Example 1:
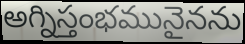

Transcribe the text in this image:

అగ్నిస్తంభమునైనను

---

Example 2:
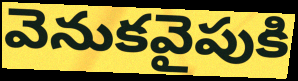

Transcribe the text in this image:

వెనుకవైపుకి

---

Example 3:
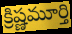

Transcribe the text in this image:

క్రిష్ణమూర్తి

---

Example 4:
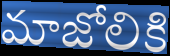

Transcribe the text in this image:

మాజోలికి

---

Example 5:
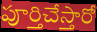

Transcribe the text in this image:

పూర్తిచేస్తారో